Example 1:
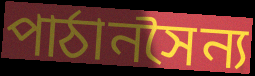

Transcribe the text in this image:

পাঠানসৈন্য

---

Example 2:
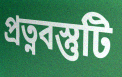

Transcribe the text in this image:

প্রত্নবস্তুটি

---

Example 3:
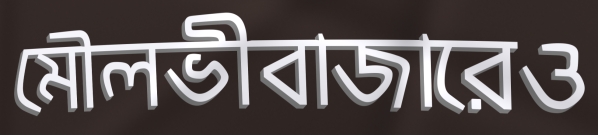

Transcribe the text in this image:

মৌলভীবাজারেও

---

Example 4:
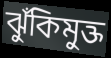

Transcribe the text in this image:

ঝুঁকিমুক্ত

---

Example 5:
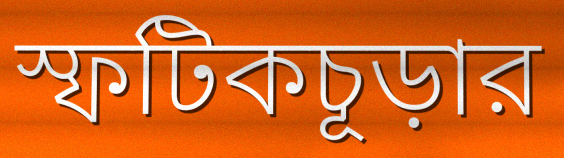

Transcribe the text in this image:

স্ফটিকচূড়ার